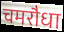
चमरौधा